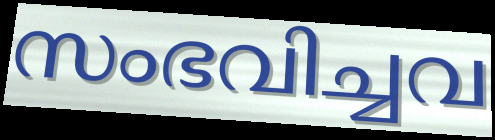
സംഭവിച്ചവ